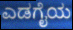
ಎಡಗೈಯ